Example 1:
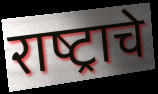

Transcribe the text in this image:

राष्ट्राचे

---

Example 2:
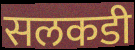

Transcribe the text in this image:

सलकडी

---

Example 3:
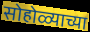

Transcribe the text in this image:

सोहोळ्याच्या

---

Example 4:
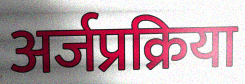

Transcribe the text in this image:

अर्जप्रक्रिया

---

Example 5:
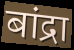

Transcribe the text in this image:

बांद्रा